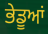
ਭੇਡੂਆਂ